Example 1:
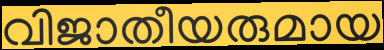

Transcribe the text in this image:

വിജാതീയരുമായ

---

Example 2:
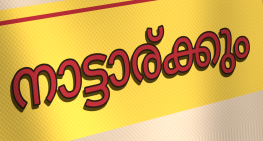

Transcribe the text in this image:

നാട്ടാര്ക്കും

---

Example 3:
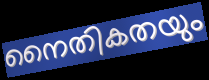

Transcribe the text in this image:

നൈതികതയും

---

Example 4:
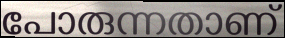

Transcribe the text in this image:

പോരുന്നതാണ്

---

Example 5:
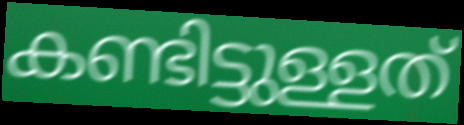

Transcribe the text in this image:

കണ്ടിട്ടുള്ളത്